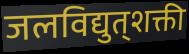
जलविद्युत्‌शक्ती